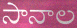
సానాల